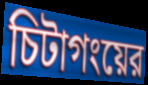
চিটাগংয়ের